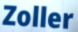
Zoller